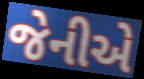
જેનીએ